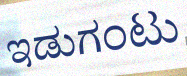
ಇಡುಗಂಟು